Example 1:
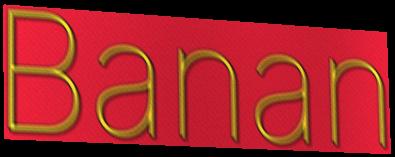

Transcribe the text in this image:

Banan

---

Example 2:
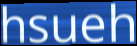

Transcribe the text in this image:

hsueh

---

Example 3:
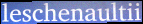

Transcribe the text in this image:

leschenaultii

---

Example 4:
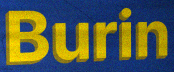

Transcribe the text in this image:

Burin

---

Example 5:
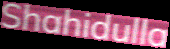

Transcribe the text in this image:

Shahidulla